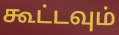
கூட்டவும்